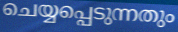
ചെയ്യപ്പെടുന്നതും